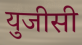
युजीसी